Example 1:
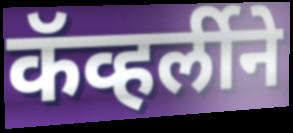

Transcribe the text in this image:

कॅव्हर्लीने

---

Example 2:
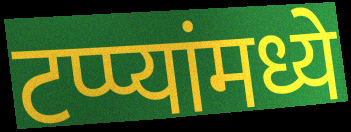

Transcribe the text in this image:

टप्प्यांमध्ये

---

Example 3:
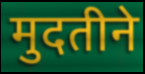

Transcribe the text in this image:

मुदतीने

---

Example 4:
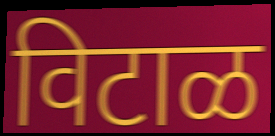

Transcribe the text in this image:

विटाळ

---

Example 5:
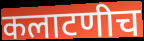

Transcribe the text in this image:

कलाटणीच